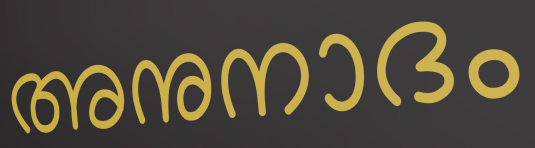
അനുനാദം